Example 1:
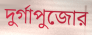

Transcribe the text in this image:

দুর্গাপুজোর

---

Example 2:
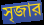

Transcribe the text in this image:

সৃজার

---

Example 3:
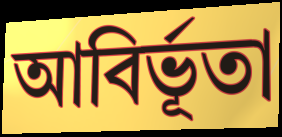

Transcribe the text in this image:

আবির্ভূতা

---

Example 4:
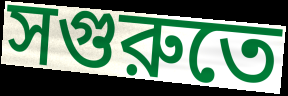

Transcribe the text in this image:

সগুরুতে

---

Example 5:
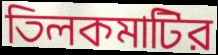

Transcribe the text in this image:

তিলকমাটির